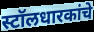
स्टॉलधारकांचे